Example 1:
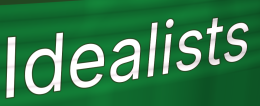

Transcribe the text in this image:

Idealists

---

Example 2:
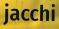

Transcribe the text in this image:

jacchi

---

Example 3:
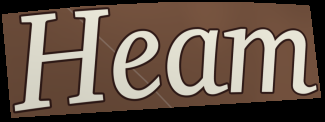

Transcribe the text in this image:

Heam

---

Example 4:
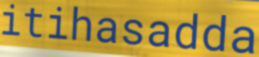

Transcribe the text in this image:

itihasadda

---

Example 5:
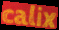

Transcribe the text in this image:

calix